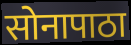
सोनापाठा